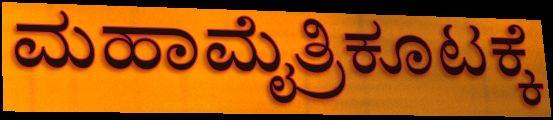
ಮಹಾಮೈತ್ರಿಕೂಟಕ್ಕೆ